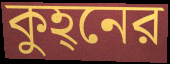
কুহ্‌নের